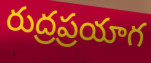
రుద్రప్రయాగ